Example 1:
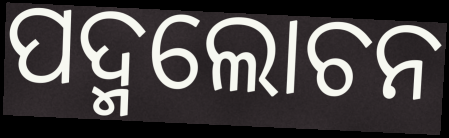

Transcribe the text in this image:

ପଦ୍ମଲୋଚନ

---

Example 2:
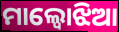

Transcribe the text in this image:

ମାଲ୍ବୋଝିଆ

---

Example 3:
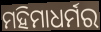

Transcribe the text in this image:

ମହିମାଧର୍ମର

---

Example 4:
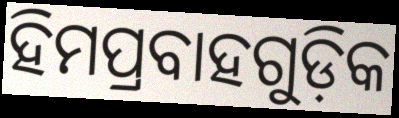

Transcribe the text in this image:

ହିମପ୍ରବାହଗୁଡ଼ିକ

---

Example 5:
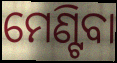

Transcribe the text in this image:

ମେଣ୍ଟିବା